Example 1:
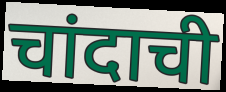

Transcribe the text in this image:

चांदाची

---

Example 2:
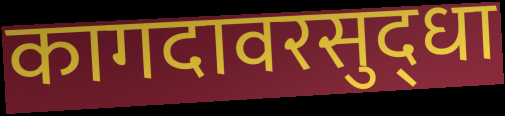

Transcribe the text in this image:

कागदावरसुद्धा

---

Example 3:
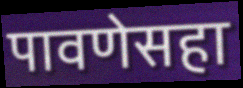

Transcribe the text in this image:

पावणेसहा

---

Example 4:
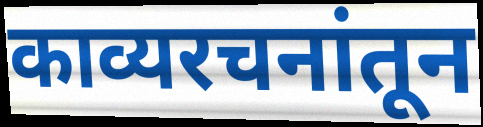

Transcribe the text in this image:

काव्यरचनांतून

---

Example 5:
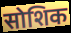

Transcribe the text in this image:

सोशिक